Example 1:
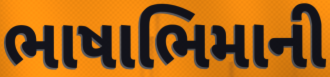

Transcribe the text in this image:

ભાષાભિમાની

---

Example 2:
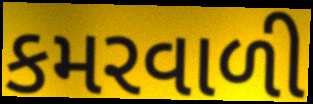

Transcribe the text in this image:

કમરવાળી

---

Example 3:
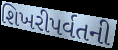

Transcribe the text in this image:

શિખરીપર્વતની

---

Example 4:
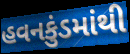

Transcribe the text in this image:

હવનકુંડમાંથી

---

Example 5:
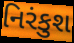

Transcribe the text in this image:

નિરંકુશ